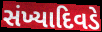
સંખ્યાદિવડે